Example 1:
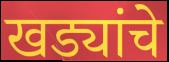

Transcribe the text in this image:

खड्यांचे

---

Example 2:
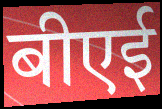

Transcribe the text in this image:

बीएई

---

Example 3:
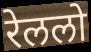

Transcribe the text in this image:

रेललो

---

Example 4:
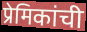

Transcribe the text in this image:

प्रेमिकांची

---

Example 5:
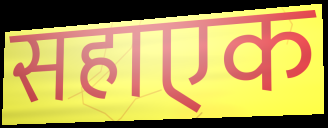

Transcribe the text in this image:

सहाएक